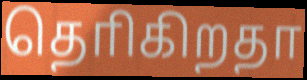
தெரிகிறதா